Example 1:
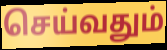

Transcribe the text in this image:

செய்வதும்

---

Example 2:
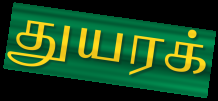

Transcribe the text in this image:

துயரக்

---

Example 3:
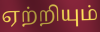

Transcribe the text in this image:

ஏற்றியும்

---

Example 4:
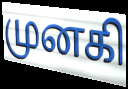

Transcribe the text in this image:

முனகி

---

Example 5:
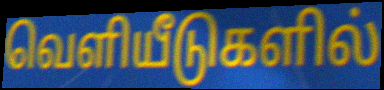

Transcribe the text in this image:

வெளியீடுகளில்